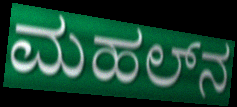
ಮಹಲ್‌ನ